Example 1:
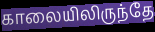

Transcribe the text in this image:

காலையிலிருந்தே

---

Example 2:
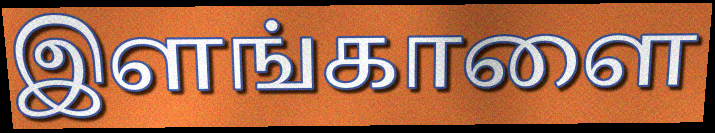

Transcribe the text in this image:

இளங்காளை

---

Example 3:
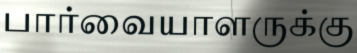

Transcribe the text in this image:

பார்வையாளருக்கு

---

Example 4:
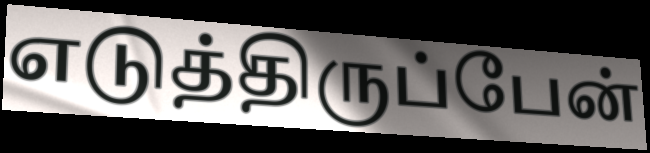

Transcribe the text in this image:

எடுத்திருப்பேன்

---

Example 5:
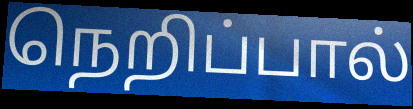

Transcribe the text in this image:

நெறிப்பால்